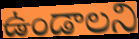
ఉండాలని